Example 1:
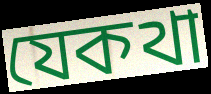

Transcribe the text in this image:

যেকথা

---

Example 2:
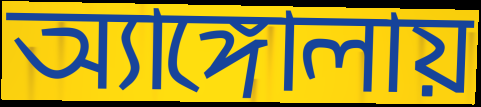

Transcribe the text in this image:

অ্যাঙ্গোলায়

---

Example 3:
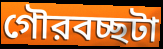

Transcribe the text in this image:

গৌরবচ্ছটা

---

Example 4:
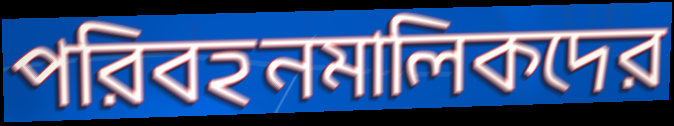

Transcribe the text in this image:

পরিবহনমালিকদের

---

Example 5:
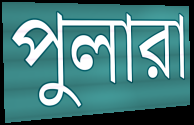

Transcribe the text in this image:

পুলারা